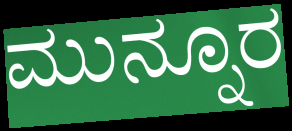
ಮುನ್ನೂರ